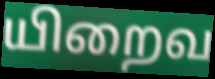
யிறைவ